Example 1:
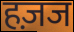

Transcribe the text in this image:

हज़ज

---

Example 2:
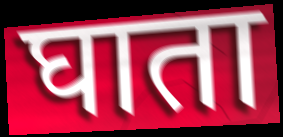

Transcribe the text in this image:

घाता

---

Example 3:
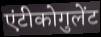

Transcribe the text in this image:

एंटीकोगुलेंट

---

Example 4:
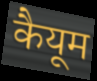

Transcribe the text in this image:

कैयूम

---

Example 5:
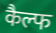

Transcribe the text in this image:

कैल्फ